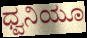
ಧ್ವನಿಯೂ